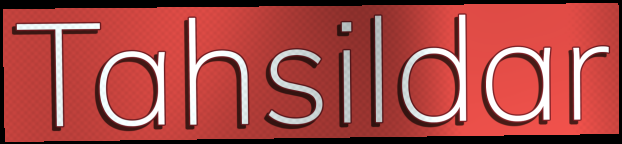
Tahsildar